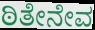
ಠಿತೇನೇವ